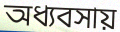
অধ্যবসায়